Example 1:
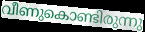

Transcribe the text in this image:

വീണുകൊണ്ടിരുന്നു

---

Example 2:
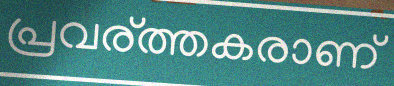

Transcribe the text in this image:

പ്രവര്ത്തകരാണ്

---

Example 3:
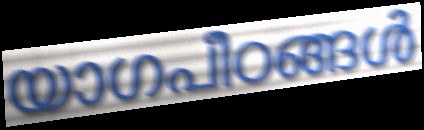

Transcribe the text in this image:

യാഗപീഠങ്ങൾ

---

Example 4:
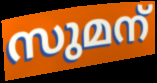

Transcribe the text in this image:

സുമന്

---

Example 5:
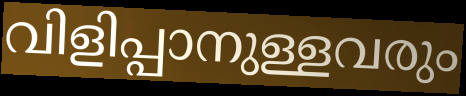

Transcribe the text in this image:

വിളിപ്പാനുള്ളവരും